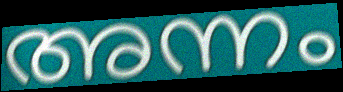
അന്നം